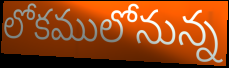
లోకములోనున్న